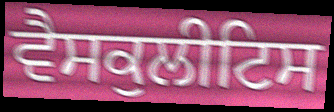
ਵੈਸਕੁਲੀਟਿਸ